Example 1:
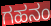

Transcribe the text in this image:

ಗಹನಂ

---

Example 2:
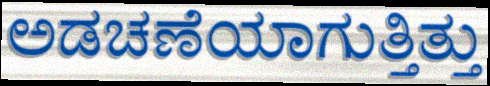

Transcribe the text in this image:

ಅಡಚಣೆಯಾಗುತ್ತಿತ್ತು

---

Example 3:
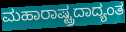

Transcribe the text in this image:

ಮಹಾರಾಷ್ಟ್ರದಾದ್ಯಂತ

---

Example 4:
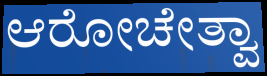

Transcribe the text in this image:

ಆರೋಚೇತ್ವಾ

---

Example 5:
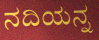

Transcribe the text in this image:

ನದಿಯನ್ನ